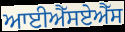
ਆਈਐੱਸਏਐੱਸ